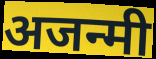
अजन्मी